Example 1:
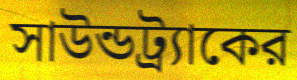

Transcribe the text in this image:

সাউন্ডট্র্যাকের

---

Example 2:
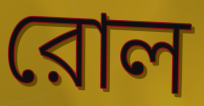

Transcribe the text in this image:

রোল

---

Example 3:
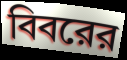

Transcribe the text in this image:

বিবরের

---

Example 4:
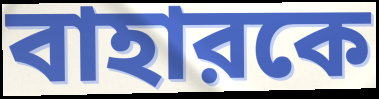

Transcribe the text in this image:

বাহারকে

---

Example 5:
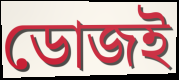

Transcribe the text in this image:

ডোজই